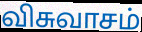
விசுவாசம்